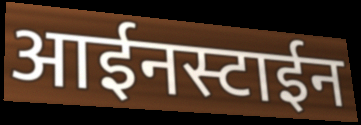
आईनस्टाईन